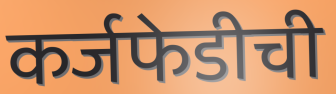
कर्जफेडीची